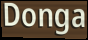
Donga